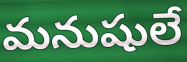
మనుషులే